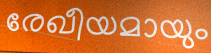
രേഖീയമായും